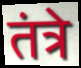
तंत्रे